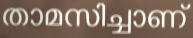
താമസിച്ചാണ്